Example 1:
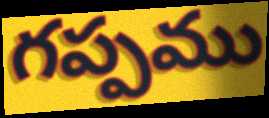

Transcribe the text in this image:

గప్పము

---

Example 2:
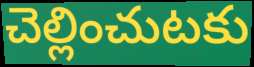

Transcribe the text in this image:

చెల్లించుటకు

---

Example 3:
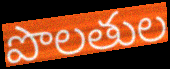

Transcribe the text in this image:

పొలతుల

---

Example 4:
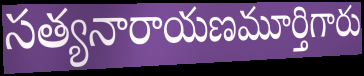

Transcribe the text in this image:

సత్యనారాయణమూర్తిగారు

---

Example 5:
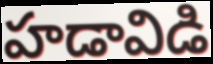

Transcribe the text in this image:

హడావిడి